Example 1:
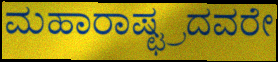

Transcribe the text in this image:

ಮಹಾರಾಷ್ಟ್ರದವರೇ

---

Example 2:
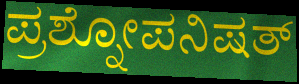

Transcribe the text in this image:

ಪ್ರಶ್ನೋಪನಿಷತ್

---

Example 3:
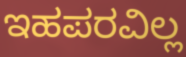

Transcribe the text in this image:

ಇಹಪರವಿಲ್ಲ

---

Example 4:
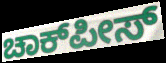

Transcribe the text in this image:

ಚಾಕ್‍ಪೀಸ್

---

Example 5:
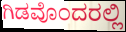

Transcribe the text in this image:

ಗಿಡವೊಂದರಲ್ಲಿ